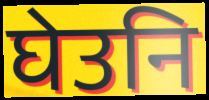
घेउनि